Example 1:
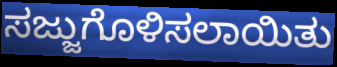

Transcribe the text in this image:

ಸಜ್ಜುಗೊಳಿಸಲಾಯಿತು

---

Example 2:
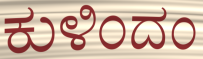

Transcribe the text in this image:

ಕುಳಿಂದಂ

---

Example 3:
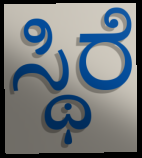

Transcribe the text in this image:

ಸ್ಥಿರೆ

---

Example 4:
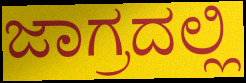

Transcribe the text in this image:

ಜಾಗ್ರದಲ್ಲಿ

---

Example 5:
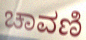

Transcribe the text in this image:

ಚಾವಣಿ